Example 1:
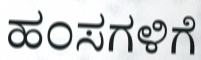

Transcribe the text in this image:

ಹಂಸಗಳಿಗೆ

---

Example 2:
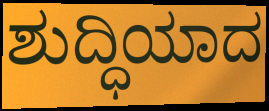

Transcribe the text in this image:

ಶುದ್ಧಿಯಾದ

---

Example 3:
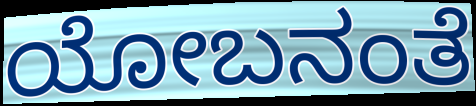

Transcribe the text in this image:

ಯೋಬನಂತೆ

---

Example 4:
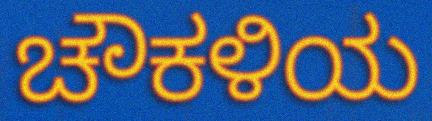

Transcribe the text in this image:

ಚೌಕಳಿಯ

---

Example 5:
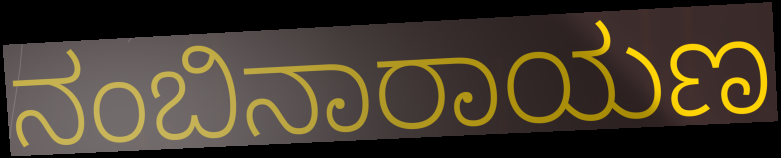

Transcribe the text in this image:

ನಂಬಿನಾರಾಯಣ